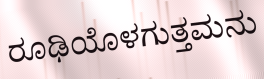
ರೂಢಿಯೊಳಗುತ್ತಮನು